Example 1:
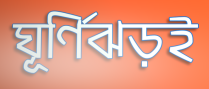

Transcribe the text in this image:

ঘূর্ণিঝড়ই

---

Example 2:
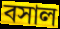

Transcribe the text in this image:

বসাল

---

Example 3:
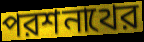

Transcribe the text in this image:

পরশনাথের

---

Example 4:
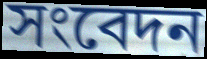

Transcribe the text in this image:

সংবেদন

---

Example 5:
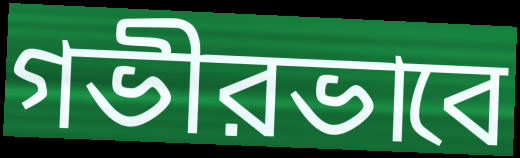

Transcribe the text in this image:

গভীরভাবে